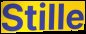
Stille